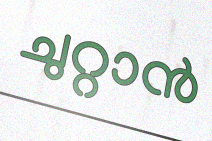
ചുറ്റാൻ